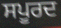
ਸਪੂਰਦ